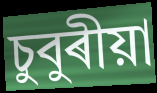
চুবুৰীয়া